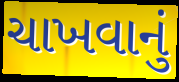
ચાખવાનું